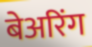
बेअरिंग